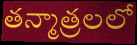
తన్మాత్రలలో